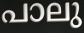
പാലു